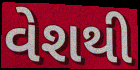
વેશથી